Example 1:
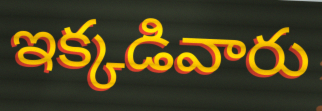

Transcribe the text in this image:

ఇక్కడివారు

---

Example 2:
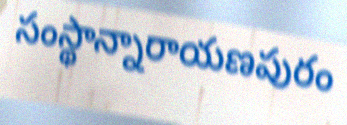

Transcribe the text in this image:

సంస్థాన్నారాయణపురం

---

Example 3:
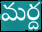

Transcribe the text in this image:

మర్ద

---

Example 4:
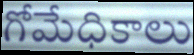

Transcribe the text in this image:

గోమేధికాలు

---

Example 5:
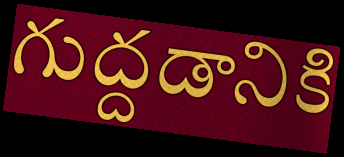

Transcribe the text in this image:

గుద్దడానికి